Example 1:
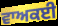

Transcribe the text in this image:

ਵਾਅਕਈ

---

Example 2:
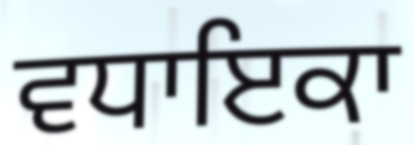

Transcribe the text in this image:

ਵਧਾਇਕਾ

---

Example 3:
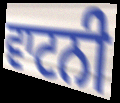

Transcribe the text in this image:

ਵਾਟਨੀ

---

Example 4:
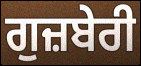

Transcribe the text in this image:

ਗੁਜ਼ਬੇਰੀ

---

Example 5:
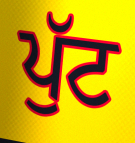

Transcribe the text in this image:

ਪੁੱਟ